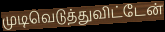
முடிவெடுத்துவிட்டேன்